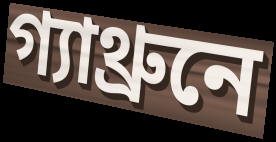
গ্যাথ্রুনে